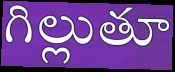
గిల్లుతూ